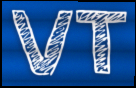
VT